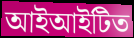
আইআইটিত